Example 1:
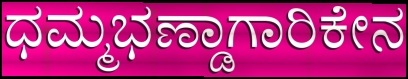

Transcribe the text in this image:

ಧಮ್ಮಭಣ್ಡಾಗಾರಿಕೇನ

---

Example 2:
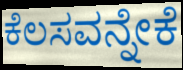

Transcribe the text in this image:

ಕೆಲಸವನ್ನೇಕೆ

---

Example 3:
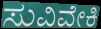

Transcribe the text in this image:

ಸುವಿವೇಕಿ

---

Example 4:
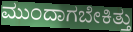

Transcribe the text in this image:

ಮುಂದಾಗಬೇಕಿತ್ತು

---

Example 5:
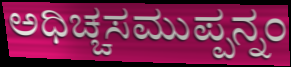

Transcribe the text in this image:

ಅಧಿಚ್ಚಸಮುಪ್ಪನ್ನಂ